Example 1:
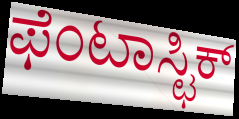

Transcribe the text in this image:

ಫೆಂಟಾಸ್ಟಿಕ್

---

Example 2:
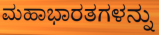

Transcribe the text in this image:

ಮಹಾಭಾರತಗಳನ್ನು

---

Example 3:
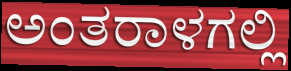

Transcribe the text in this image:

ಅಂತರಾಳಗಲ್ಲಿ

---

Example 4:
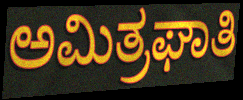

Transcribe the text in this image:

ಅಮಿತ್ರಘಾತಿ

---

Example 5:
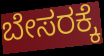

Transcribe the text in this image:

ಬೇಸರಕ್ಕೆ